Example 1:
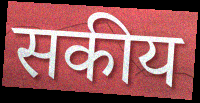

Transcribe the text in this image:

सकीय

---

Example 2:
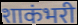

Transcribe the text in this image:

शाकंभरी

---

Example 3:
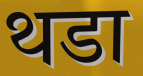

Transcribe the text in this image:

थडा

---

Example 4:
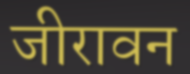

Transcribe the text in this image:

जीरावन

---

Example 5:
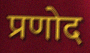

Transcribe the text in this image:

प्रणोद